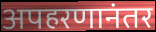
अपहरणानंतर